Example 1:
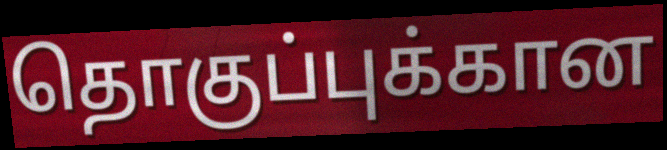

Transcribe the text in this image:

தொகுப்புக்கான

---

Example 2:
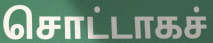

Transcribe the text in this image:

சொட்டாகச்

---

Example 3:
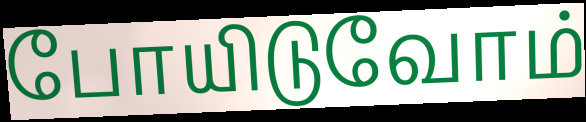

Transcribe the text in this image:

போயிடுவோம்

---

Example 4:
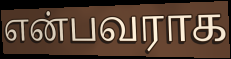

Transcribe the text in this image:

என்பவராக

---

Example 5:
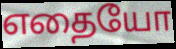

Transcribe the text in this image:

எதையோ